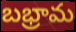
బభ్రామ